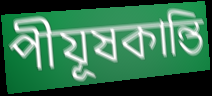
পীযূষকান্তি